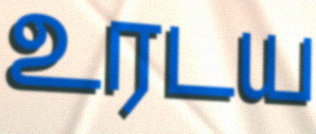
உரடய